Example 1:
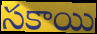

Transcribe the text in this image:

సకాయి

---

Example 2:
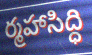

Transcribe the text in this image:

ర్మహాసిద్ధి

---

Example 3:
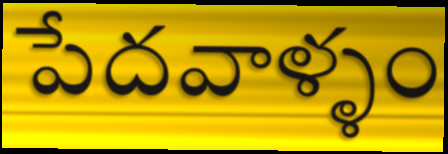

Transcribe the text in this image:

పేదవాళ్ళం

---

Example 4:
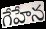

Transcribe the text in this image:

గేహేన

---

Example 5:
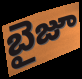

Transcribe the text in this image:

బైజూ